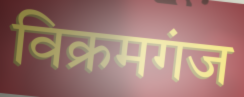
विक्रमगंज